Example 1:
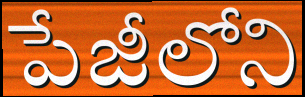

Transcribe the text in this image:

పేజీలోని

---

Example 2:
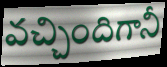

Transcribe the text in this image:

వచ్చిందిగానీ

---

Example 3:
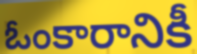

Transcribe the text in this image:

ఓంకారానికీ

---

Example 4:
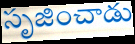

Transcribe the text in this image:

సృజించాడు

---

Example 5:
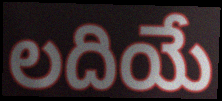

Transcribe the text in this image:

లదియే